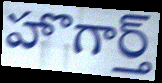
హొగార్త్